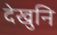
देखुनि